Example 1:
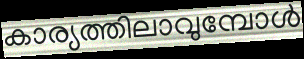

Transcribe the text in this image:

കാര്യത്തിലാവുമ്പോൾ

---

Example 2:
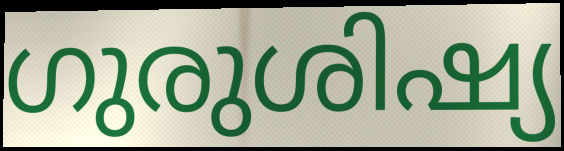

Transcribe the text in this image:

ഗുരുശിഷ്യ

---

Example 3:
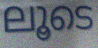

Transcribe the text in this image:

ലൂടെ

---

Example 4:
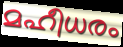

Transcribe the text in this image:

മഹീധരം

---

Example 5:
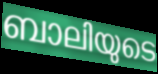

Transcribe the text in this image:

ബാലിയുടെ